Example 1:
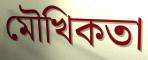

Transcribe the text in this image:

মৌখিকতা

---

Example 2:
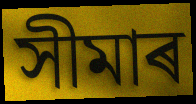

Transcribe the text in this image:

সীমাৰ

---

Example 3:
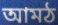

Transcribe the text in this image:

আমঠ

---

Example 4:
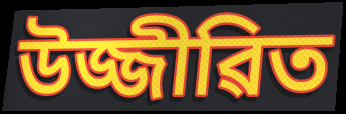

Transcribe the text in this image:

উজ্জীৱিত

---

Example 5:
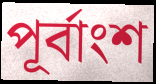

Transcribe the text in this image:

পূৰ্বাংশ